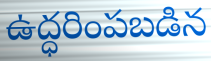
ఉద్ధరింపబడిన